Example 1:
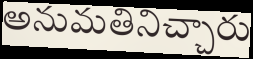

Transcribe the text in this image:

అనుమతినిచ్చారు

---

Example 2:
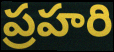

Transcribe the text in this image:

ప్రహరి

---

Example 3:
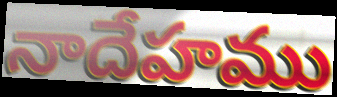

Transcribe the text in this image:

నాదేహము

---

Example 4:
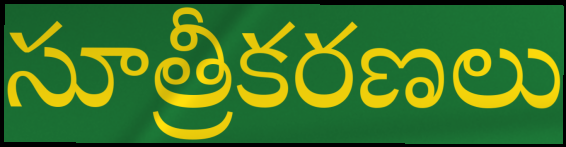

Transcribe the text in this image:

సూత్రీకరణలు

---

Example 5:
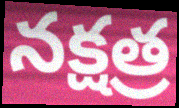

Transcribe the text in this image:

నక్షత్ర